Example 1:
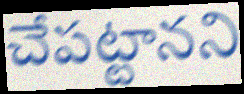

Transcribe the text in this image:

చేపట్టానని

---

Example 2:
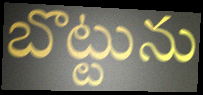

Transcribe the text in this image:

బొట్టును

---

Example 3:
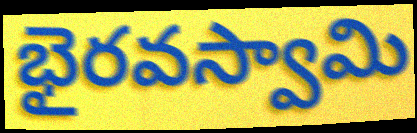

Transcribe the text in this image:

భైరవస్వామి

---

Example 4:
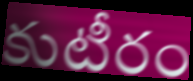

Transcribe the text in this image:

కుటీరం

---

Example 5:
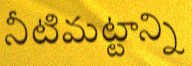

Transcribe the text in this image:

నీటిమట్టాన్ని